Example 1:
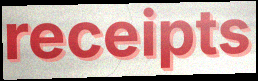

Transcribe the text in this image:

receipts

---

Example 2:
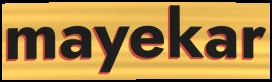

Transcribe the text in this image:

mayekar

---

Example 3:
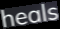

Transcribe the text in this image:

heals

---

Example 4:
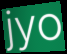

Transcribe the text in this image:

jyo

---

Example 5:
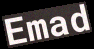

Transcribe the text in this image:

Emad